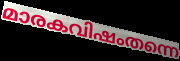
മാരകവിഷംതന്നെ